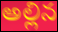
అల్లిన